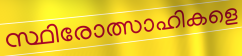
സ്ഥിരോത്സാഹികളെ